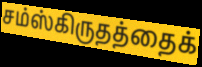
சம்ஸ்கிருதத்தைக்